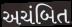
અચંબિત